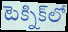
టెక్నిక్‌లో